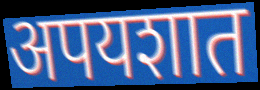
अपयशात